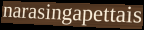
narasingapettais